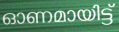
ഓണമായിട്ട്